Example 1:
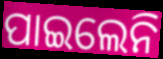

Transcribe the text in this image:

ପାଇଲେନି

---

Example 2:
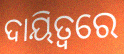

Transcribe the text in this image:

ଦାୟିତ୍ୱରେ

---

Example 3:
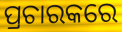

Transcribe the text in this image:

ପ୍ରଚାରକରେ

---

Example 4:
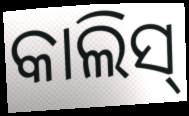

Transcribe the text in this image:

କାଲିସ୍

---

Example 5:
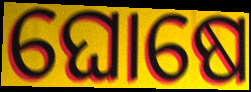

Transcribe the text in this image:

ଘୋଷେ